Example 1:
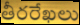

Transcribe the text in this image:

తీరరేఖలు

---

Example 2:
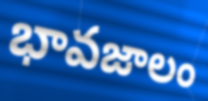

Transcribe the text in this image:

భావజాలం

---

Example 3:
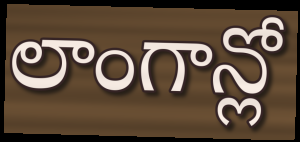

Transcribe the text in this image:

లాంగాన్లో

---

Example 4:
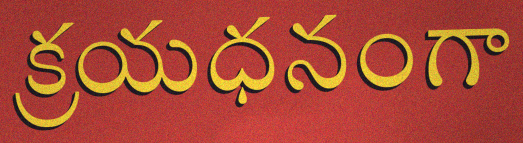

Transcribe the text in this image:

క్రయధనంగా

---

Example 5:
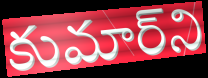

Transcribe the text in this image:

కుమార్‌ని